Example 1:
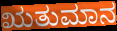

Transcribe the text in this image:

ಋತುಮಾನ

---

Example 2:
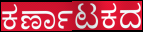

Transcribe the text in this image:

ಕರ್ಣಾಟಕದ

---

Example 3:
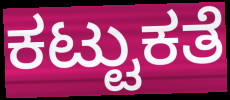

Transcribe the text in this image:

ಕಟ್ಟುಕತೆ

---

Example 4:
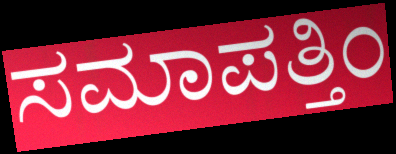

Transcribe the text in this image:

ಸಮಾಪತ್ತಿಂ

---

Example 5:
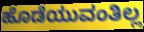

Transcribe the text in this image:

ಹೊಡೆಯುವಂತಿಲ್ಲ